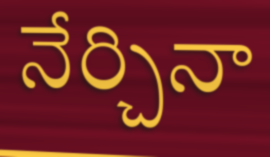
నేర్చినా